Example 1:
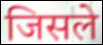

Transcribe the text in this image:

जिसले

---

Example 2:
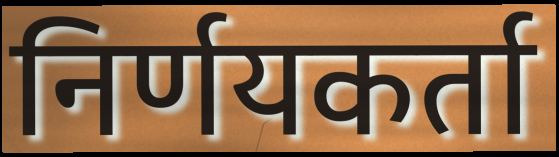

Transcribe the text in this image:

निर्णयकर्ता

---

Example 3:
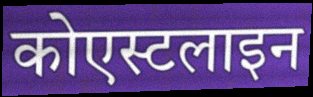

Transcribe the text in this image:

कोएस्टलाइन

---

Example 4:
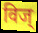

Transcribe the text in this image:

विज्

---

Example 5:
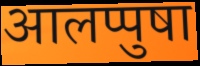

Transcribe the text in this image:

आलप्पुषा